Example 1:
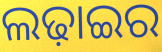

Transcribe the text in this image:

ଲଢ଼ାଇର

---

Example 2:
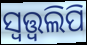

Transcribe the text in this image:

ସ୍ୱତ୍ତ୍ୱଲିପି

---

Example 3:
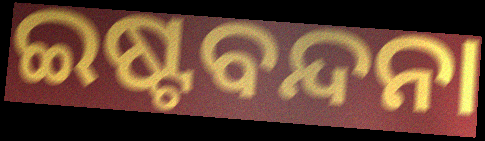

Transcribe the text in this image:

ଇଷ୍ଟବନ୍ଦନା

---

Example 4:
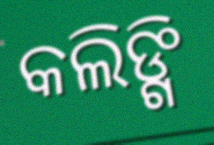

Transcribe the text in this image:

କଲିଙ୍ଗି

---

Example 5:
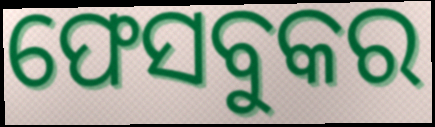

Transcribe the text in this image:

ଫେସବୁକର